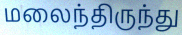
மலைந்திருந்து